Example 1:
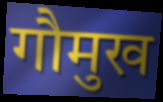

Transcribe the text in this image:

गौमुख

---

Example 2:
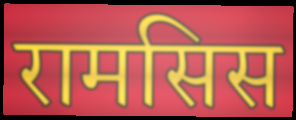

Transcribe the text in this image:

रामसिस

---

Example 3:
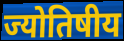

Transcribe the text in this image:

ज्योतिषीय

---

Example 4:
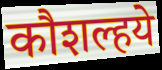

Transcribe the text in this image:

कौशल्हये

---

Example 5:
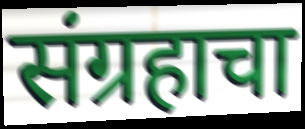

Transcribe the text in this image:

संग्रहाचा